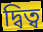
দ্বিত্ব